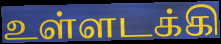
உள்ளடக்கி